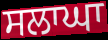
ਸਲਾਘਾ